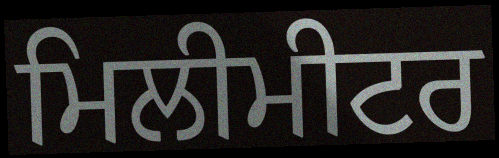
ਮਿਲੀਮੀਟਰ